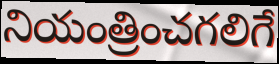
నియంత్రించగలిగే